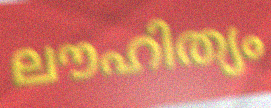
ലൗഹിത്യം